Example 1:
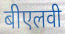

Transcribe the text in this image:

बीएलवी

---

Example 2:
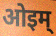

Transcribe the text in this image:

ओइम्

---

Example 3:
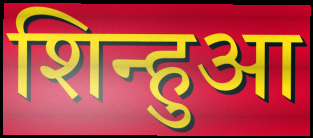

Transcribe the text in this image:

शिन्‍हुआ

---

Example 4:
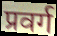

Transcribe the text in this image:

प्रवर्ग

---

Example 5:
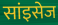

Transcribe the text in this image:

सांइसेज